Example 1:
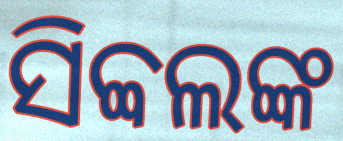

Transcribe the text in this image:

ସିବ୍ବଲଙ୍କ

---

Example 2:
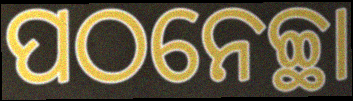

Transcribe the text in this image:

ପଠନେଚ୍ଛା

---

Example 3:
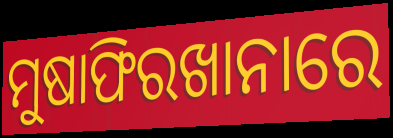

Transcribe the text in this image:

ମୁଷାଫିରଖାନାରେ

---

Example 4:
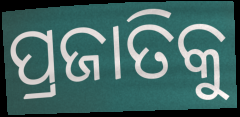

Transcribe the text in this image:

ପ୍ରଜାତିକୁ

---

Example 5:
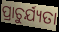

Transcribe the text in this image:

ପ୍ରାଚୁର୍ଯ୍ୟତା